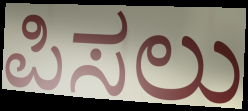
ಪಿಸಲು